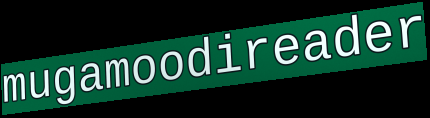
mugamoodireader